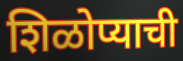
शिळोप्याची